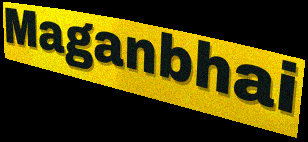
Maganbhai